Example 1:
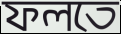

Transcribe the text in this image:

ফলতে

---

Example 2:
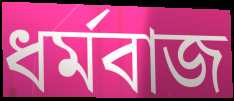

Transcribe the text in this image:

ধর্মবাজ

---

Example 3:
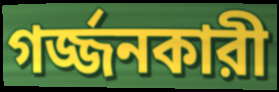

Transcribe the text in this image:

গর্জ্জনকারী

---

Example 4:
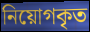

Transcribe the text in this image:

নিয়োগকৃত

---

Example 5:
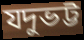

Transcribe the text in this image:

যদুভট্ট